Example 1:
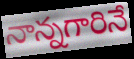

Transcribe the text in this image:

నాన్నగారినే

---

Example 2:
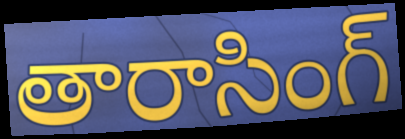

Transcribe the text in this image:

తారాసింగ్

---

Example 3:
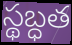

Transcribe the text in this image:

స్థబ్ధత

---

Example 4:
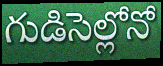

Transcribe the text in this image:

గుడిసెల్లోనో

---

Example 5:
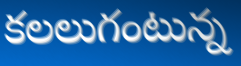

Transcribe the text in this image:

కలలుగంటున్న